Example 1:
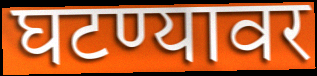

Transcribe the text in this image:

घटण्यावर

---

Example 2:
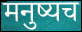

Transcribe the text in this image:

मनुष्यच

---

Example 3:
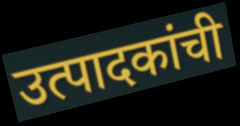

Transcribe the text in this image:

उत्पादकांची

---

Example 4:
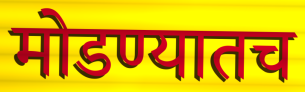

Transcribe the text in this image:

मोडण्यातच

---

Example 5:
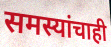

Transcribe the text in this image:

समस्यांचाही